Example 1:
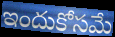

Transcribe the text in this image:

ఇందుకోసమే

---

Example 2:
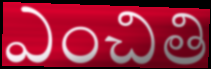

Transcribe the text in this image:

ఎంచితి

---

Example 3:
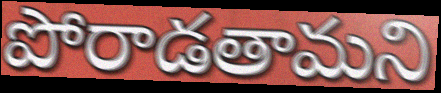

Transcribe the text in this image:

పోరాడతామని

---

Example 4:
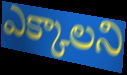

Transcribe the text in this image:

ఎక్కాలని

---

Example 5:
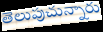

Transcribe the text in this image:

తెలుపుచున్నారు